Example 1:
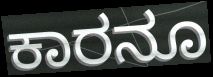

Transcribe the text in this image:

ಕಾರನೂ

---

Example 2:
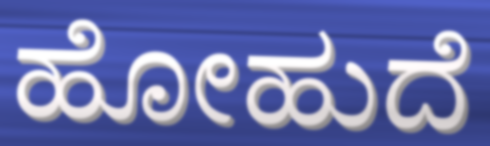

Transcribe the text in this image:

ಹೋಹುದೆ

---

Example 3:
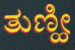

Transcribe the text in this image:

ತುಣ್ಹೀ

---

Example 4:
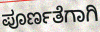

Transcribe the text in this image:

ಪೂರ್ಣತೆಗಾಗಿ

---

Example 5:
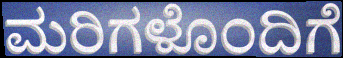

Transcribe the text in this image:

ಮರಿಗಳೊಂದಿಗೆ